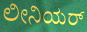
ಲೀನಿಯರ್